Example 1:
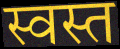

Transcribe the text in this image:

स्वस्त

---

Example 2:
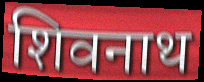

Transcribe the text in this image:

शिवनाथ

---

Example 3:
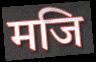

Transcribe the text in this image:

मजि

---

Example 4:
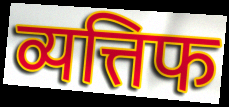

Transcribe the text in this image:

व्यत्तिफ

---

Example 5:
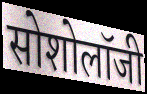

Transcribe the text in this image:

सोशोलॉजी